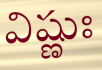
విష్ణుః